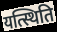
यत्स्थिति